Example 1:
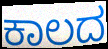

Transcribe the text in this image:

ಕಾಲದ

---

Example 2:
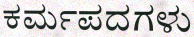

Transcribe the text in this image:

ಕರ್ಮಪದಗಳು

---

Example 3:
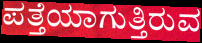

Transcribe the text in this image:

ಪತ್ತೆಯಾಗುತ್ತಿರುವ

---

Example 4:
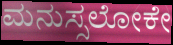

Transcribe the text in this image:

ಮನುಸ್ಸಲೋಕೇ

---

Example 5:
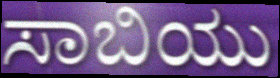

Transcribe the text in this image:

ಸಾಬಿಯು